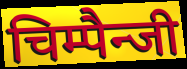
चिम्पैन्जी